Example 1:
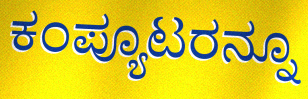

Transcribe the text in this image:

ಕಂಪ್ಯೂಟರನ್ನೂ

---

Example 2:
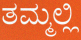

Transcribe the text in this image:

ತಮ್ಮಲ್ಲಿ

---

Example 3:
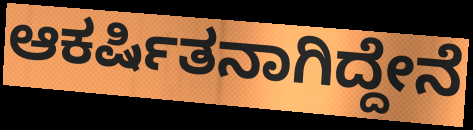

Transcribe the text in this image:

ಆಕರ್ಷಿತನಾಗಿದ್ದೇನೆ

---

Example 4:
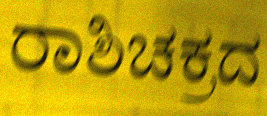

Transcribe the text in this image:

ರಾಶಿಚಕ್ರದ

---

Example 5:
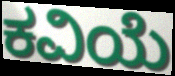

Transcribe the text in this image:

ಕವಿಯೆ